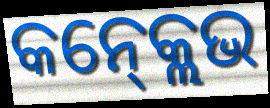
କନ୍କ୍ଲେଭ